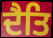
ਦੈਤਿ